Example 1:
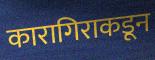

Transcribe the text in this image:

कारागिराकडून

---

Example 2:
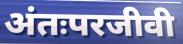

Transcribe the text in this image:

अंतःपरजीवी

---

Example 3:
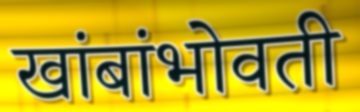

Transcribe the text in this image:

खांबांभोवती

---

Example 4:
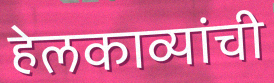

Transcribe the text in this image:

हेलकाव्यांची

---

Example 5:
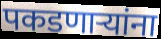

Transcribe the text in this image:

पकडणाऱ्यांना